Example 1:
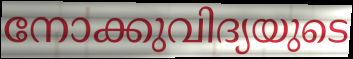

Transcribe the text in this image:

നോക്കുവിദ്യയുടെ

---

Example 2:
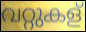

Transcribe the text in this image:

വറ്റുകള്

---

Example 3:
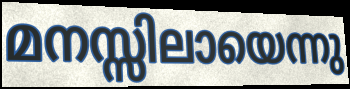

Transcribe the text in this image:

മനസ്സിലായെന്നു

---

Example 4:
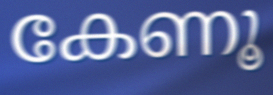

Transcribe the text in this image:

കേണൂ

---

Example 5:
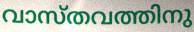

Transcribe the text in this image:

വാസ്തവത്തിനു